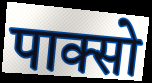
पाक्सो